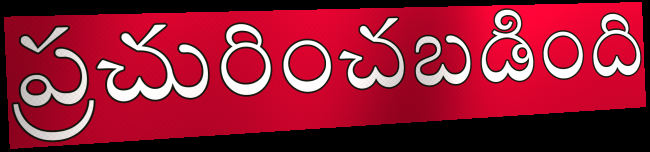
ప్రచురించబడింది